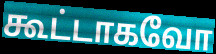
கூட்டாகவோ